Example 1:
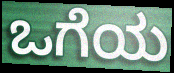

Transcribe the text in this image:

ಒಗೆಯ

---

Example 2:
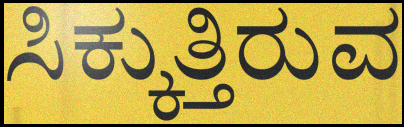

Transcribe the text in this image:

ಸಿಕ್ಕುತ್ತಿರುವ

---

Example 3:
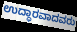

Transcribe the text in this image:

ಉದ್ಧಾರವಾದವರು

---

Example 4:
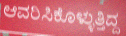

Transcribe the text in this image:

ಆವರಿಸಿಕೊಳ್ಳುತ್ತಿದ್ದ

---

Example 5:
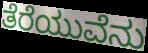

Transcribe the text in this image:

ತೆರೆಯುವೆನು